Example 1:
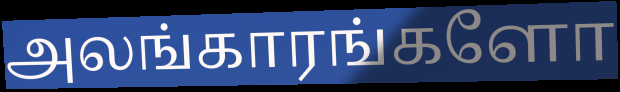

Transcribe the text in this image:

அலங்காரங்களோ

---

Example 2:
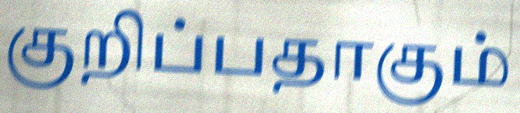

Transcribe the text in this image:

குறிப்பதாகும்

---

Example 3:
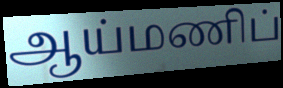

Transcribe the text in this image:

ஆய்மணிப்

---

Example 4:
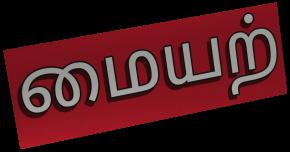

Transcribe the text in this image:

மையற்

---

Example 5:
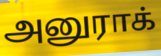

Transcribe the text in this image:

அனுராக்